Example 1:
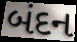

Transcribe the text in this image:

બંદન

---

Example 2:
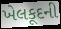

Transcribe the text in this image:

ખેલકૂદની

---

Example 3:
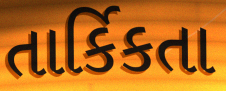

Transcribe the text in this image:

તાર્કિકતા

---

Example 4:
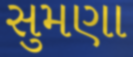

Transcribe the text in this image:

સુમણા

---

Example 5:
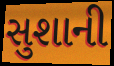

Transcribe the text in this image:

સુશાની